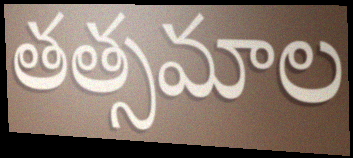
తత్సమాల